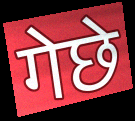
गेछे